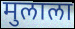
मुलाला